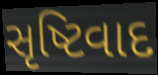
સૃષ્ટિવાદ